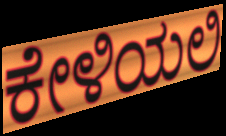
ಕೇಳಿಯಲಿ